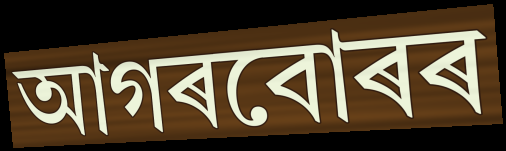
আগৰবোৰৰ